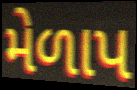
મેળાપ